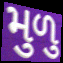
મુળુ